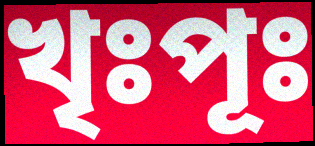
খৃঃপূঃ